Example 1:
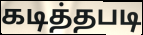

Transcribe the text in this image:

கடித்தபடி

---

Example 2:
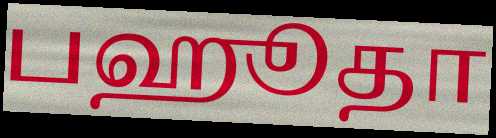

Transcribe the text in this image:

பஹூதா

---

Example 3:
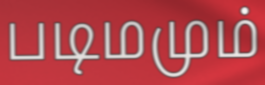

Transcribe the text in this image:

படிமமும்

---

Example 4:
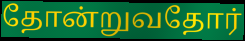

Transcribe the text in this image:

தோன்றுவதோர்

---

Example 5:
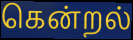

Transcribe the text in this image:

கென்றல்